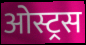
ओस्ट्रस